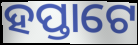
ହପ୍ତାଟେ